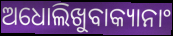
ଅଧୋଲିଖୁବାକ୍ୟାନାଂ